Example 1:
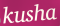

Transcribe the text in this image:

kusha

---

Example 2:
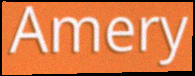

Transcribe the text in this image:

Amery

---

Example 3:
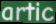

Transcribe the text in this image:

artic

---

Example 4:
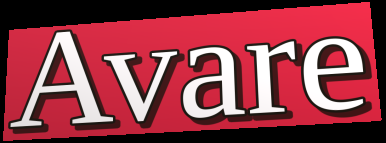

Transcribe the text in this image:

Avare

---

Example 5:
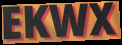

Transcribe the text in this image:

EKWX